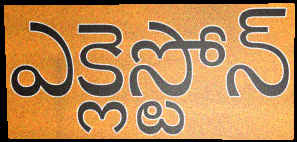
ఎక్లెస్టోన్